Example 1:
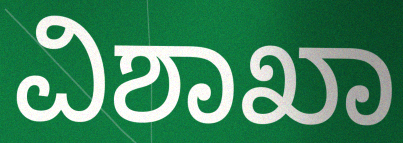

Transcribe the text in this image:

ವಿಶಾಖಾ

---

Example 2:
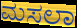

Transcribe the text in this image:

ಮಸಲಾ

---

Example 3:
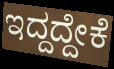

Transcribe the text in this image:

ಇದ್ದದ್ದೇಕೆ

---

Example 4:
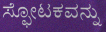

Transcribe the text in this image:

ಸ್ಫೋಟಕವನ್ನು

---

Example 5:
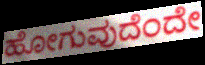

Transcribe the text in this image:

ಹೋಗುವುದೆಂದೇ